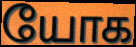
யோக